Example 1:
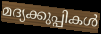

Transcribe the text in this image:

മദ്യക്കുപ്പികൾ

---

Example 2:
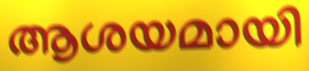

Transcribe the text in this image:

ആശയമായി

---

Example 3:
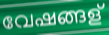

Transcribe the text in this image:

വേഷങ്ങള്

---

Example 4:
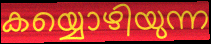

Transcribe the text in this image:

കയ്യൊഴിയുന്ന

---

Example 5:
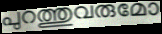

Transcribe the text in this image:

പുറത്തുവരുമോ